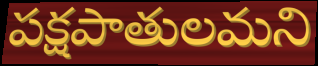
పక్షపాతులమని